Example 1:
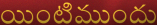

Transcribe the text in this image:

యింటిముందు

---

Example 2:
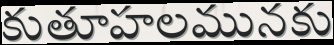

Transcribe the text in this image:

కుతూహలమునకు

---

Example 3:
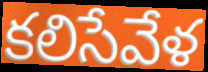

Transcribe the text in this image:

కలిసేవేళ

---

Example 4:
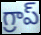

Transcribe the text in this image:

గ్రాప్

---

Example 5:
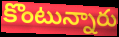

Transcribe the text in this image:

కొంటున్నారు